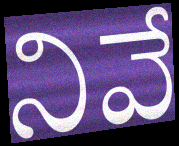
నివే